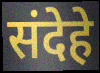
संदेहे